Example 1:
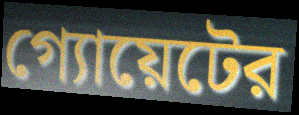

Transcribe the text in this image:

গ্যোয়েটের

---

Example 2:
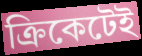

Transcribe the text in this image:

ক্রিকেটেই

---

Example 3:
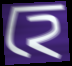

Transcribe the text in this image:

হে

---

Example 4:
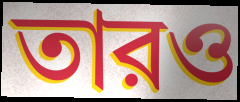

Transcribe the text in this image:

তারও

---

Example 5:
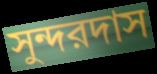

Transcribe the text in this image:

সুন্দরদাস